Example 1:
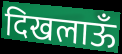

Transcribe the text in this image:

दिखलाऊँ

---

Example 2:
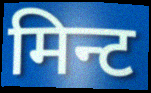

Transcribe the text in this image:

मिन्ट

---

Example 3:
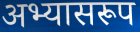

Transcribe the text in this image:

अभ्यासरूप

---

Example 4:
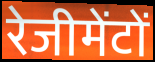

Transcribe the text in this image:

रेजीमेंटों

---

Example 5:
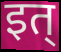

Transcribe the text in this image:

इत्